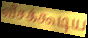
வீசக்கூடிய